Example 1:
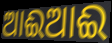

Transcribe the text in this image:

ଆଈଆଈ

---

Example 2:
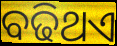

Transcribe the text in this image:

ବଢିଥଏ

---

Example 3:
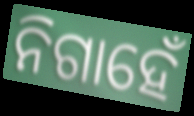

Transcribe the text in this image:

ନିଗାହେଁ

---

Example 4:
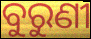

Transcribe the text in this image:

ବୁରୁଣୀ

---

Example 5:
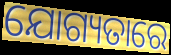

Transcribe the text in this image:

ଯୋଗ୍ୟତାରେ